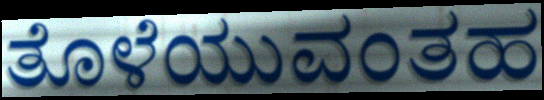
ತೊಳೆಯುವಂತಹ